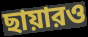
ছায়ারও